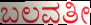
ಬಲವತೀ